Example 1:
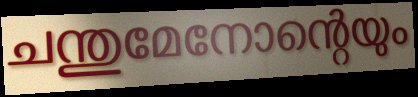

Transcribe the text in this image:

ചന്തുമേനോന്റെയും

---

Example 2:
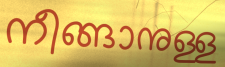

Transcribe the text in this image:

നീങ്ങാനുള്ള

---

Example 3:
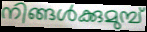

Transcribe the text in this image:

നിങ്ങൾക്കുമുമ്പ്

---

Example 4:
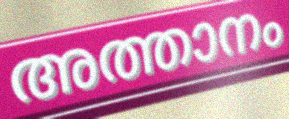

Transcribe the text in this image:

അത്താനം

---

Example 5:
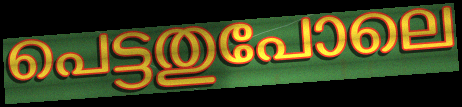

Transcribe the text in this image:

പെട്ടതുപോലെ